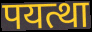
पयत्था